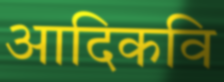
आदिकवि